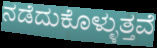
ನಡೆದುಕೊಳ್ಳುತ್ತವೆ